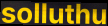
solluthu